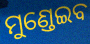
ମୁଣ୍ଡେଇବ